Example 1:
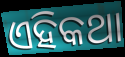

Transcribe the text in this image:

ଏହିକଥା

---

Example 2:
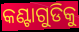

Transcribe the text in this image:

କଣ୍ଟାଗୁଡିକୁ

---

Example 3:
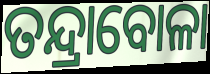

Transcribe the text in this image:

ତନ୍ଦ୍ରାବୋଳା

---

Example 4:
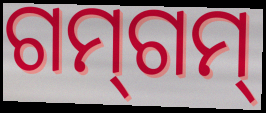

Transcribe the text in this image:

ଗମ୍‌ଗମ୍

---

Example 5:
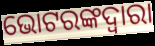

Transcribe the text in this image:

ଭୋଟରଙ୍କଦ୍ଵାରା